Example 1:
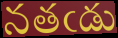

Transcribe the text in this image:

నతఁడు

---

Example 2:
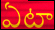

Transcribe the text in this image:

ఏటా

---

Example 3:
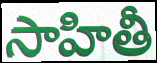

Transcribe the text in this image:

సాహితీ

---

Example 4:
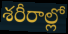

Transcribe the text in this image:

శరీరాల్లో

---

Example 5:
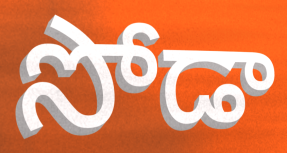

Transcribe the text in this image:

సోడా